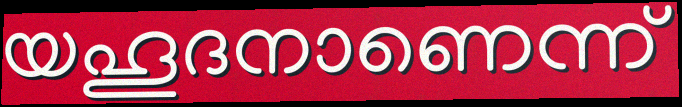
യഹൂദനാണെന്ന്